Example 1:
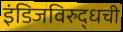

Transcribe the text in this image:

इंडिजविरुद्धची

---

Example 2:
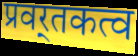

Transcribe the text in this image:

प्रवर्तकत्व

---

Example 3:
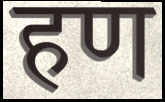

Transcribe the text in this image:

हण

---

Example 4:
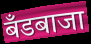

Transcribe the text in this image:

बँडबाजा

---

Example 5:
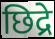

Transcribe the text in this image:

छिद्रे